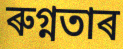
ৰুগ্নতাৰ